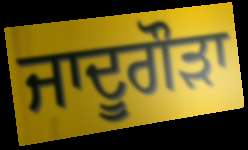
ਜਾਦੂਗੌੜਾ